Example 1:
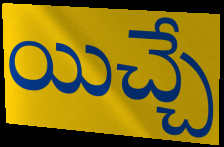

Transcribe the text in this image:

యిచ్చే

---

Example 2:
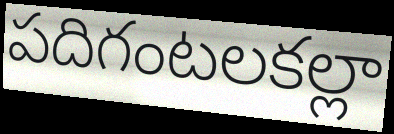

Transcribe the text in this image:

పదిగంటలకల్లా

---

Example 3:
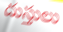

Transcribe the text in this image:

దుస్తులు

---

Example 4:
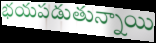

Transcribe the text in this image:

భయపడుతున్నాయి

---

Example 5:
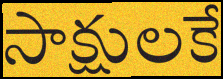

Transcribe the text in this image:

సాక్షులకే